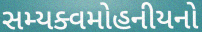
સમ્યક્વમોહનીયનો